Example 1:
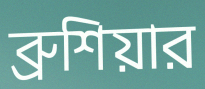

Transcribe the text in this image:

ব্রুশিয়ার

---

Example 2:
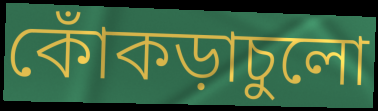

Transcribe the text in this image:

কোঁকড়াচুলো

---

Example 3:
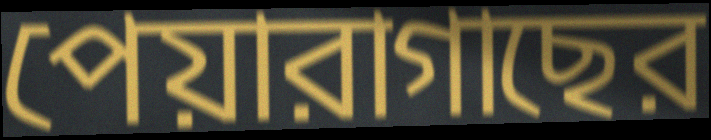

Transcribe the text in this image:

পেয়ারাগাছের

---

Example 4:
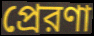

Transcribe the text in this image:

প্রেরণা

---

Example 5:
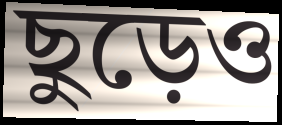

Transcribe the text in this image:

ছুড়েও